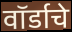
वॉर्डाचे